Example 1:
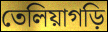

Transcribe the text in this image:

তেলিয়াগড়ি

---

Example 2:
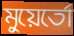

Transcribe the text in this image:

মুয়ের্তো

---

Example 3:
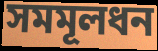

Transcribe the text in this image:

সমমূলধন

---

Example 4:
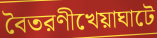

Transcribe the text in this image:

বৈতরণীখেয়াঘাটে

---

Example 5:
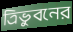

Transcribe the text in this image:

ত্রিভুবনের